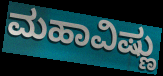
ಮಹಾವಿಷ್ಣು